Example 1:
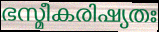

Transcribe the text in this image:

ഭസ്മീകരിഷ്യതഃ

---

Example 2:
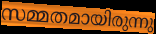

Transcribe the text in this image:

സമ്മതമായിരുന്നു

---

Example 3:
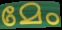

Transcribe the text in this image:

മേം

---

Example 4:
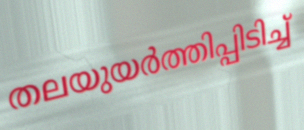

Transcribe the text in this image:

തലയുയർത്തിപ്പിടിച്ച്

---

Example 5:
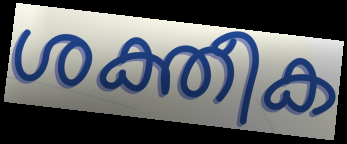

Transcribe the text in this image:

ശക്തീക